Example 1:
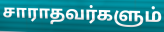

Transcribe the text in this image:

சாராதவர்களும்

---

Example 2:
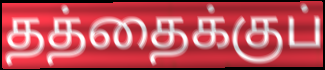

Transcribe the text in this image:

தத்தைக்குப்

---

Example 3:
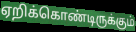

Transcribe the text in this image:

ஏறிக்கொண்டிருக்கும்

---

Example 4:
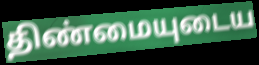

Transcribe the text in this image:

திண்மையுடைய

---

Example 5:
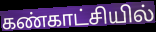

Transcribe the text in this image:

கண்காட்சியில்